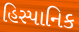
હિસ્પાનિક